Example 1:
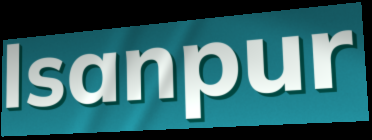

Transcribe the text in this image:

Isanpur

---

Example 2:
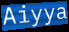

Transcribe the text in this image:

Aiyya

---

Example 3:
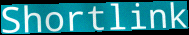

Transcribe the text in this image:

Shortlink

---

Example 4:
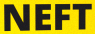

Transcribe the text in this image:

NEFT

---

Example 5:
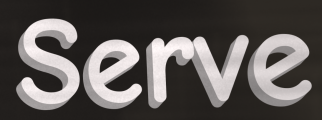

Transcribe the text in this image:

Serve